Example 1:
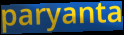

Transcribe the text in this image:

paryanta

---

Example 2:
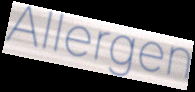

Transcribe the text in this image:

Allergen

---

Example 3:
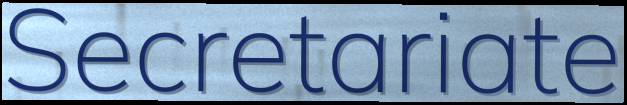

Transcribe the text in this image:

Secretariate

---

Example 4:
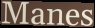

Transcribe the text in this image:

Manes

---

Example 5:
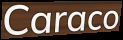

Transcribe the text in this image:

Caraco